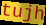
tujh